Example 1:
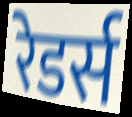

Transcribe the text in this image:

रेडर्स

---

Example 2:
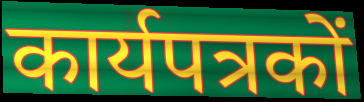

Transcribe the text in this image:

कार्यपत्रकों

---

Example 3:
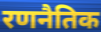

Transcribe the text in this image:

रणनैतिक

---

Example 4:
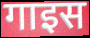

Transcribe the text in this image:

गाइस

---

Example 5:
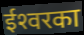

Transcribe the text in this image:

ईश्वरका